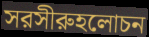
সরসীরুহলোচন